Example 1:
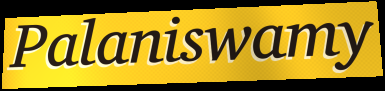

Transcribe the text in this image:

Palaniswamy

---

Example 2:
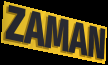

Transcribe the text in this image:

ZAMAN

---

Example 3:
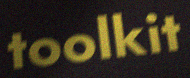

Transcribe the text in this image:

toolkit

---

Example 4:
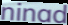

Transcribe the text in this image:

ninad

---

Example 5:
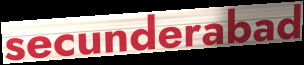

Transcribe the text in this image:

secunderabad